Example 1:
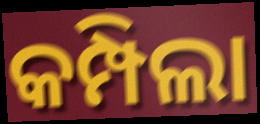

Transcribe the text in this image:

କମ୍ପିଲା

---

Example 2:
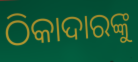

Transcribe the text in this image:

ଠିକାଦାରଙ୍କୁ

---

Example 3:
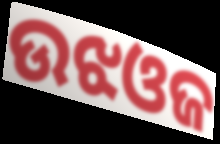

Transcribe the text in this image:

ଉଝଓଜ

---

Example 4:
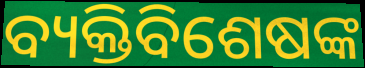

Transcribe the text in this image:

ବ୍ୟକ୍ତିବିଶେଷଙ୍କ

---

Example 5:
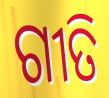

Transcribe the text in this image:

ଗୀତି